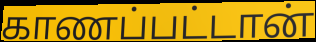
காணப்பட்டான்